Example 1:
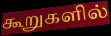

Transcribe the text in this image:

கூறுகளில்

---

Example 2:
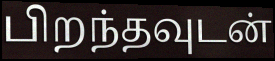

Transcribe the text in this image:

பிறந்தவுடன்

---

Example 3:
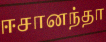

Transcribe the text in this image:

ஈசானந்தா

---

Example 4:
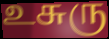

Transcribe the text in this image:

உசுரு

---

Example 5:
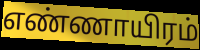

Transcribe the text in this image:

எண்ணாயிரம்